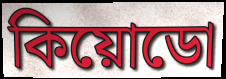
কিয়োডো